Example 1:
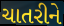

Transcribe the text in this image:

ચાતરીને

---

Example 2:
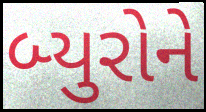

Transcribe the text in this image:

બ્યુરોને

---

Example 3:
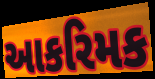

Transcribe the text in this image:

આકરિમક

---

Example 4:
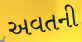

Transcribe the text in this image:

અવતની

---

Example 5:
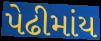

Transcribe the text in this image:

પેઢીમાંય